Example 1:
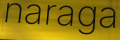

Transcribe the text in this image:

naraga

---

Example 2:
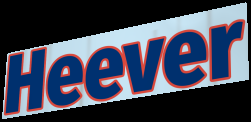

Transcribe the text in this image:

Heever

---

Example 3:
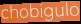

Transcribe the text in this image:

chobigulo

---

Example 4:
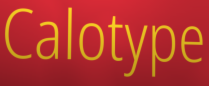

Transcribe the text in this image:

Calotype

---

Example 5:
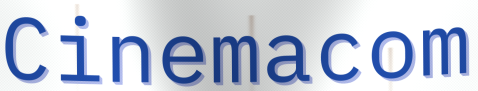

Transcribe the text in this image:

Cinemacom